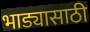
भाड्यासाठी